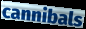
cannibals